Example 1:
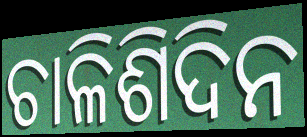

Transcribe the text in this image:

ଚାଳିଶିଦିନ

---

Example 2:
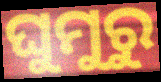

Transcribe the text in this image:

ଘୁମୁରୁ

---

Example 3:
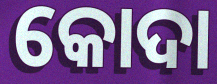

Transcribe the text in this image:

କୋଦା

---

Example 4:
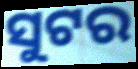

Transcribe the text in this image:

ସୁଟର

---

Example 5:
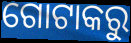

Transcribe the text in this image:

ଗୋଟାକରୁ